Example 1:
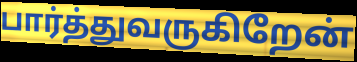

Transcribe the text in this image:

பார்த்துவருகிறேன்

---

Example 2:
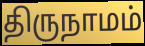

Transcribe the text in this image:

திருநாமம்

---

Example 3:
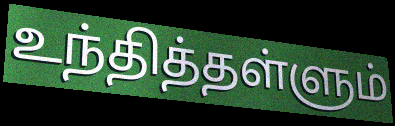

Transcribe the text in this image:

உந்தித்தள்ளும்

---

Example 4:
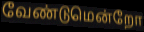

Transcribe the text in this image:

வேண்டுமென்றோ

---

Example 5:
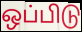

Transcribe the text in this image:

ஒப்பிடு